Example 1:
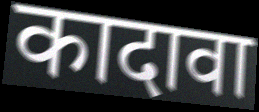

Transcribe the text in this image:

कादावा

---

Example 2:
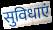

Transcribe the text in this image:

सुविधाएं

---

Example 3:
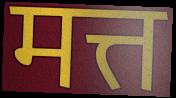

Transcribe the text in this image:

मत्त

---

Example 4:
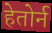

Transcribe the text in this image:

हेतोर्न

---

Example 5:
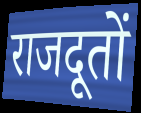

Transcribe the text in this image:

राजदूतों